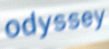
odyssey